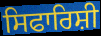
ਸਿਫਾਰਿਸ਼ੀ